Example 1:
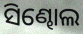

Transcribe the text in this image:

ସିଣ୍ଢୋଲ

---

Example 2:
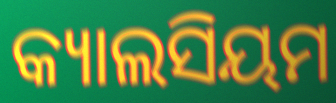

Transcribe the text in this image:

କ୍ୟାଲସିୟମ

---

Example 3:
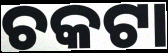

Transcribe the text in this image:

ଚକଟା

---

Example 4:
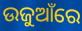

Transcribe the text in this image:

ଉଜୁଆଁରେ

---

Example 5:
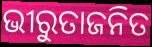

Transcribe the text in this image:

ଭୀରୁତାଜନିତ